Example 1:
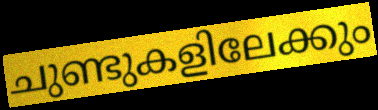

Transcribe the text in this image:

ചുണ്ടുകളിലേക്കും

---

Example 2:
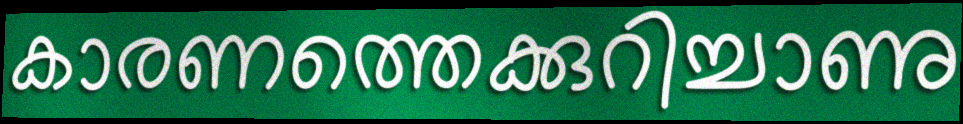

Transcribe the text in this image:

കാരണത്തെക്കുറിച്ചാണു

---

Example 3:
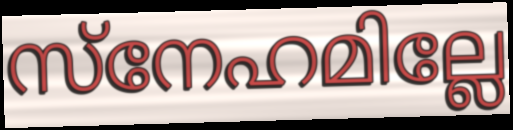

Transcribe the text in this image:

സ്നേഹമില്ലേ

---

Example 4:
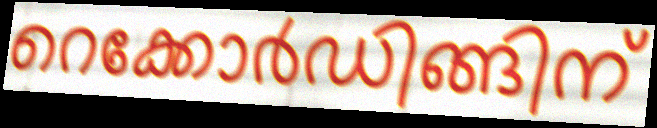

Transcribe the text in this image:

റെക്കോർഡിങ്ങിന്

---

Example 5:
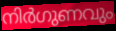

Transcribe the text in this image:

നിർഗുണവും